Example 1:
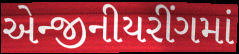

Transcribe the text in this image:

એન્જીનીયરીંગમાં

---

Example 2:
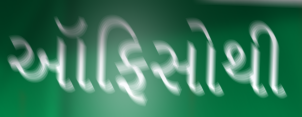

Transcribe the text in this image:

ઑફિસોથી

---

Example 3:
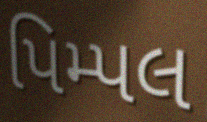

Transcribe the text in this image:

પિમ્પલ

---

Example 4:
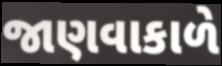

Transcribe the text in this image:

જાણવાકાળે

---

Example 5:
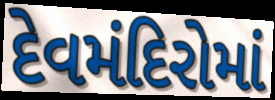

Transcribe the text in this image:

દેવમંદિરોમાં